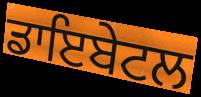
ਡਾਇਬੇਟਲ